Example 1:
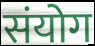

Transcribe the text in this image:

संयोग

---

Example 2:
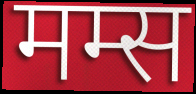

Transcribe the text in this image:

मम्स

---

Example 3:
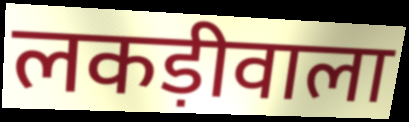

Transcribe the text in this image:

लकड़ीवाला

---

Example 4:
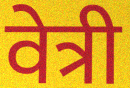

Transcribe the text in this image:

वेत्री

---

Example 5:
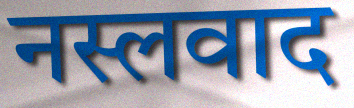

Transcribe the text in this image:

नस्लवाद